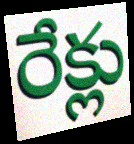
రేక్లు